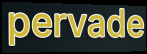
pervade